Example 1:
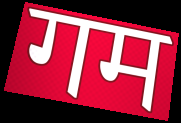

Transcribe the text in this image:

गम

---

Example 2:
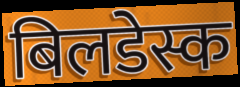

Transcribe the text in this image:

बिलडेस्क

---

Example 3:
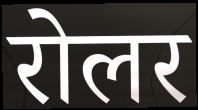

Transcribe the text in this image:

रोलर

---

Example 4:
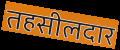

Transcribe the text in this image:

तहसीलदार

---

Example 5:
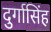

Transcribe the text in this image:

दुर्गासिंह